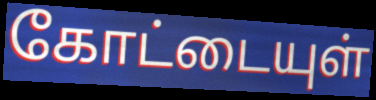
கோட்டையுள்